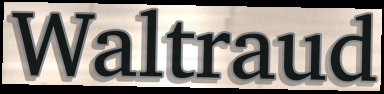
Waltraud